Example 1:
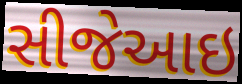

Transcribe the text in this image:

સીજેઆઇ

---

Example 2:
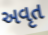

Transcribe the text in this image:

અવૃત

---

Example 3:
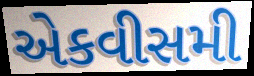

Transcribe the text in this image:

એકવીસમી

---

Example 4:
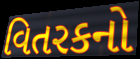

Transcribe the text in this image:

વિતરકનો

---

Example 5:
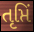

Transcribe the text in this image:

તૃપ્તિં